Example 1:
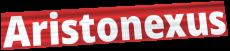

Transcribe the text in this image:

Aristonexus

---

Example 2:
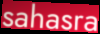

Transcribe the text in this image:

sahasra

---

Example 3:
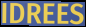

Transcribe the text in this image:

IDREES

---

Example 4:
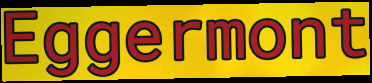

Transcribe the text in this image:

Eggermont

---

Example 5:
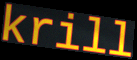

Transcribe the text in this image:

krill